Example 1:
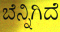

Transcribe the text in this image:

ಬೆನ್ನಿಗಿದೆ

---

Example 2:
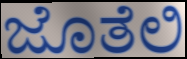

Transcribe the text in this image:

ಜೊತೆಲಿ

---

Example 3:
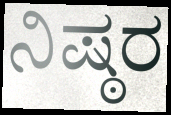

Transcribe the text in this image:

ನಿಷ್ಠರ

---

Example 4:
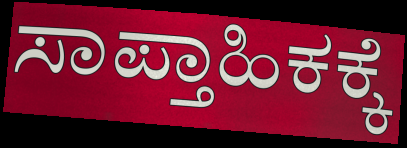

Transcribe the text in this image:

ಸಾಪ್ತಾಹಿಕಕ್ಕೆ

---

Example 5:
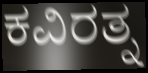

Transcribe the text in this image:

ಕವಿರತ್ನ